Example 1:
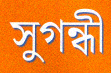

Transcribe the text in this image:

সুগন্ধী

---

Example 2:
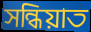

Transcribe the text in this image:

সন্ধিয়াত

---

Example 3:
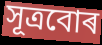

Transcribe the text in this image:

সূত্ৰবোৰ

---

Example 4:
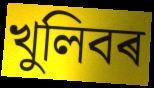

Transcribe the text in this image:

খুলিবৰ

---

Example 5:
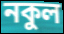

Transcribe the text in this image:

নকুল